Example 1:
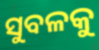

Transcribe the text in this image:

ସୁବଳକୁ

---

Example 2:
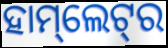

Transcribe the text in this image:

ହାମ୍‌ଲେଟ୍‌ର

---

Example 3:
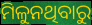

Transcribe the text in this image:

ମିଳୁନଥିବାରୁ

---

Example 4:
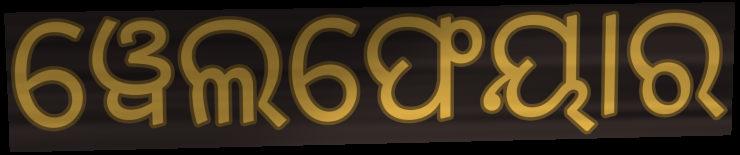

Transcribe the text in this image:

ୱେଲଫେୟାର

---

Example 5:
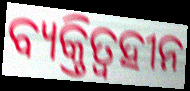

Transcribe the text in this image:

ବ୍ୟକ୍ତିତ୍ୱହୀନ